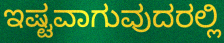
ಇಷ್ಟವಾಗುವುದರಲ್ಲಿ